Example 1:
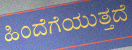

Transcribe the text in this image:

ಹಿಂದೆಗೆಯುತ್ತದೆ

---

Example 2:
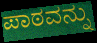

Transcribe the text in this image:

ಪಾಠವನ್ನು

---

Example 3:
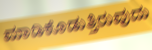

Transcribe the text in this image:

ಮಾಡಿಕೊಡುತ್ತಿರುವುದು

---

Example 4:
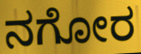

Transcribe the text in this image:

ನಗೋರ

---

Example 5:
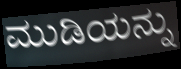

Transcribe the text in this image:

ಮುಡಿಯನ್ನು